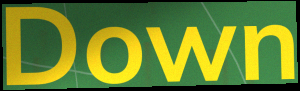
Down